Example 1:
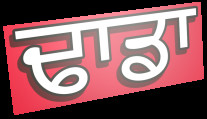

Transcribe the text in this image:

ਢਾਡਾ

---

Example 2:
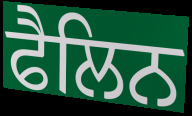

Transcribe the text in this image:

ਫੈਲਿਨ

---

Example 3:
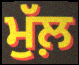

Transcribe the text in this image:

ਮੁੱਲ਼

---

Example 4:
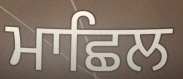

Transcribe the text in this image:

ਮਾਛਿਲ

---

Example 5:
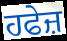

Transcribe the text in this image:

ਹਫੇਜ਼